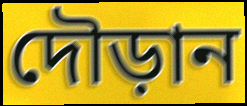
দৌড়ান